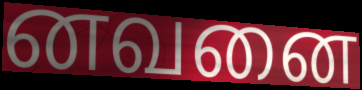
னவனை